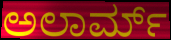
ಅಲಾರ್ಮ್